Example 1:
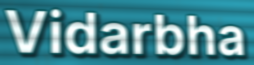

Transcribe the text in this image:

Vidarbha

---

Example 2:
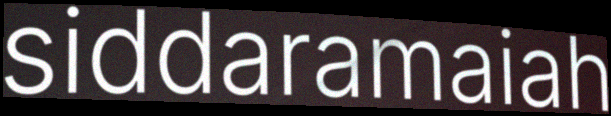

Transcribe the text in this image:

siddaramaiah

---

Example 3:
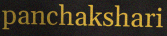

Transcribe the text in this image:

panchakshari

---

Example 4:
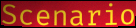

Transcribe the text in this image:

Scenario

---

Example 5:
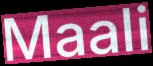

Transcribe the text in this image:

Maali